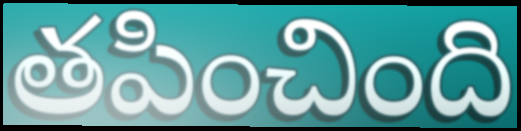
తపించింది